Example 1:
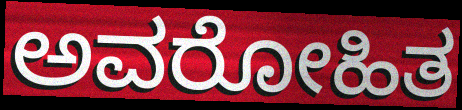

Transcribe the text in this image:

ಅವರೋಹಿತ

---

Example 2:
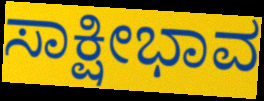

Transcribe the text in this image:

ಸಾಕ್ಷೀಭಾವ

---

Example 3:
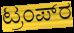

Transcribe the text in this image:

ಟ್ರಂಪ್‍ರ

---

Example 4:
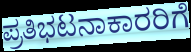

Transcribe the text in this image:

ಪ್ರತಿಭಟನಾಕಾರರಿಗೆ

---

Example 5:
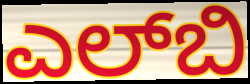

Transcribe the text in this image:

ಎಲ್‌ಬಿ